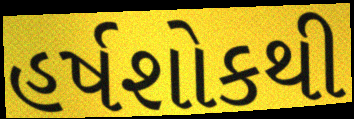
હર્ષશોકથી